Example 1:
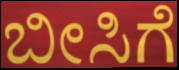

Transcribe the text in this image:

ಬೀಸಿಗೆ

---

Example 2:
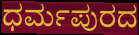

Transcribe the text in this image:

ಧರ್ಮಪುರದ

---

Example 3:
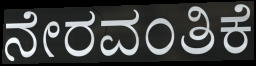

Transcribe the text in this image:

ನೇರವಂತಿಕೆ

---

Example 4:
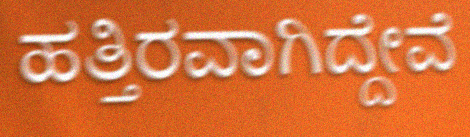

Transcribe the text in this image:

ಹತ್ತಿರವಾಗಿದ್ದೇವೆ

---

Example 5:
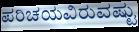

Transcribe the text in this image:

ಪರಿಚಯವಿರುವಷ್ಟು